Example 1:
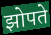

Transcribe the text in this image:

झोपते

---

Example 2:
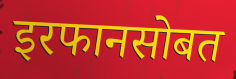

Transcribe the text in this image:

इरफानसोबत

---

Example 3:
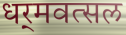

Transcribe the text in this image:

धर्मवत्सल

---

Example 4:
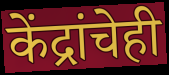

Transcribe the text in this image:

केंद्रांचेही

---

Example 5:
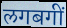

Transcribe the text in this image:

लगबगीं